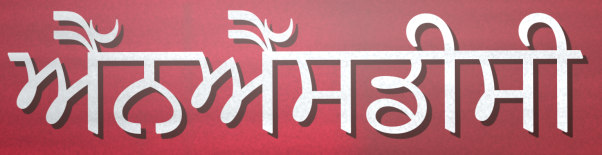
ਐੱਨਐੱਸਡੀਸੀ